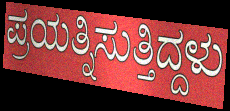
ಪ್ರಯತ್ನಿಸುತ್ತಿದ್ದಳು